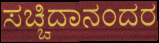
ಸಚ್ಚಿದಾನಂದರ